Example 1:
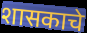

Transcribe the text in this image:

शासकाचे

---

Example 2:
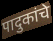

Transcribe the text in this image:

पादुकांचे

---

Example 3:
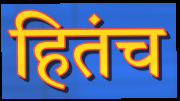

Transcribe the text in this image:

हितंच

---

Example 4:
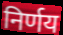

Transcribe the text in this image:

निर्णय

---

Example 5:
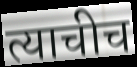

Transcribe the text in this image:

त्याचीच